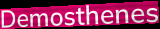
Demosthenes